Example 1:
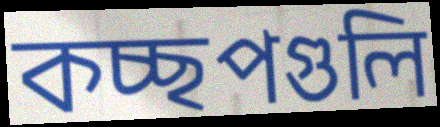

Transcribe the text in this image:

কচ্ছপগুলি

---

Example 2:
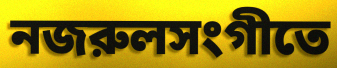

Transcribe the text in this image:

নজরুলসংগীতে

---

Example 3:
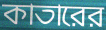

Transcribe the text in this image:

কাতারের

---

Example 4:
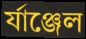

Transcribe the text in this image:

র্যাঞ্জেল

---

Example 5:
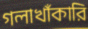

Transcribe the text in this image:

গলাখাঁকারি